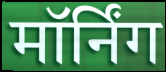
मॉर्निंग